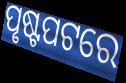
ପୃଷ୍ଟପଟରେ